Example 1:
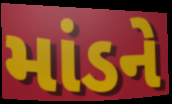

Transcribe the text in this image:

માંડને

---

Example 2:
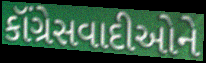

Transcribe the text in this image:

કૉંગ્રેસવાદીઓને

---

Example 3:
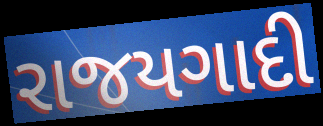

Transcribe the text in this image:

રાજયગાદી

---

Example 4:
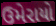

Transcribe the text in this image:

ઉમેરાયો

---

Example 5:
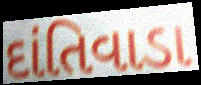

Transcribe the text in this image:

દાંતિવાડા